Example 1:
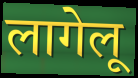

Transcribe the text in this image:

लागेलू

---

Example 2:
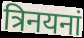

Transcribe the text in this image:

त्रिनयनां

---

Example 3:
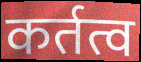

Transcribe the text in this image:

कर्तत्व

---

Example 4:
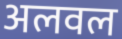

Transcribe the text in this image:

अलवल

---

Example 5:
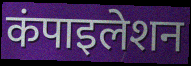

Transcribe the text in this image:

कंपाइलेशन